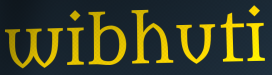
wibhuti